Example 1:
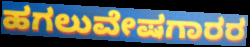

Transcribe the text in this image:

ಹಗಲುವೇಷಗಾರರ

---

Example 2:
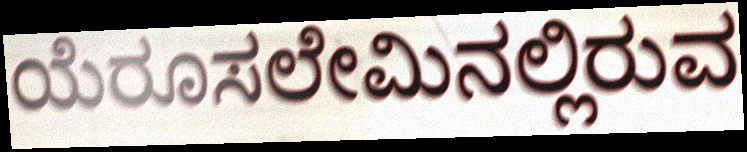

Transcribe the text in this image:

ಯೆರೂಸಲೇಮಿನಲ್ಲಿರುವ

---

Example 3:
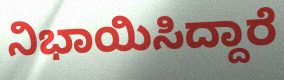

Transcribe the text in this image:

ನಿಭಾಯಿಸಿದ್ದಾರೆ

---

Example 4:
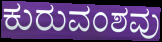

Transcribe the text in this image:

ಕುರುವಂಶವು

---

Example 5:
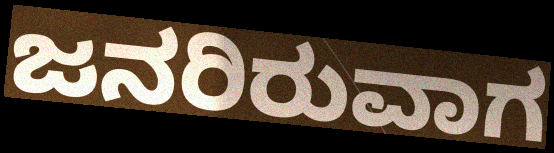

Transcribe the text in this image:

ಜನರಿರುವಾಗ